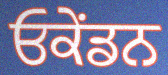
ਓਕੇਂਡਨ